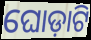
ଘୋଡ଼ାଟି